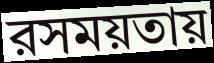
রসময়তায়